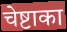
चेष्टाका